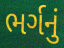
ભર્ગનું